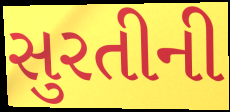
સુરતીની